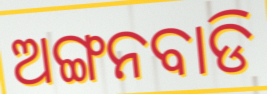
ଅଙ୍ଗନବାଡି